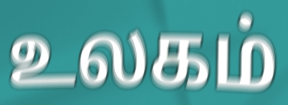
உலகம்